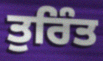
ਤੁਰਿੰਤ